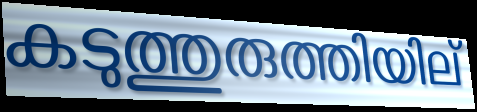
കടുത്തുരുത്തിയില്